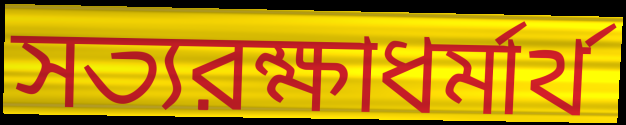
সত্যরক্ষাধর্মার্থ